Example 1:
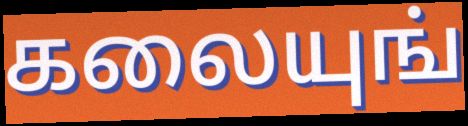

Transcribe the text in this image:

கலையுங்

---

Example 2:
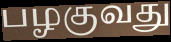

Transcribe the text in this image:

பழகுவது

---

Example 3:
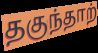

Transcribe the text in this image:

தகுந்தாற்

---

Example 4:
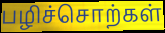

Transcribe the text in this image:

பழிச்சொற்கள்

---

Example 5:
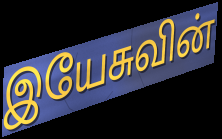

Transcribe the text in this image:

இயேசுவின்